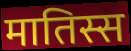
मातिस्स